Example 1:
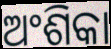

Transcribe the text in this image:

ଅଂଶିକା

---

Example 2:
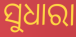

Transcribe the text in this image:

ସୁଧାରା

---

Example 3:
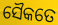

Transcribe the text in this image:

ସୈକତେ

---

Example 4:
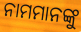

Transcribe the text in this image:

ନାମମାନଙ୍କୁ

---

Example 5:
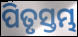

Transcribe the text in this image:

ପିତୃସ୍ତମ୍ଭ